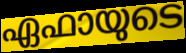
ഏഫായുടെ